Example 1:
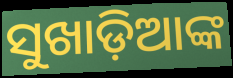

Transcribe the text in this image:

ସୁଖାଡ଼ିଆଙ୍କ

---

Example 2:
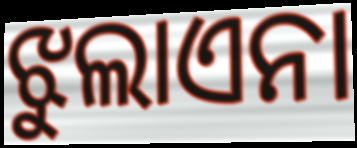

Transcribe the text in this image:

ଝୁଲାଏନା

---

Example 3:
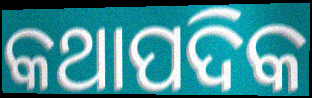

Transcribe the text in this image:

କଥାପଦିକ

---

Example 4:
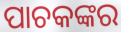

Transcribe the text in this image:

ପାଚକଙ୍କର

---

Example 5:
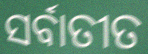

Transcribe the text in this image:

ସର୍ବାତୀତ